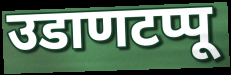
उडाणटप्पू